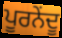
ਪੂਰਨੇਂਦੂ